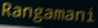
Rangamani